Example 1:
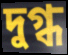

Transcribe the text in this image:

দুগ্ধ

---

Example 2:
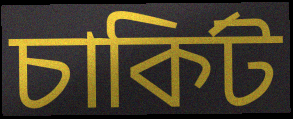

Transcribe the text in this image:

চাৰ্কিট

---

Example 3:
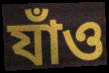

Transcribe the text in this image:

যাঁও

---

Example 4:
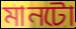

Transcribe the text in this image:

মানটো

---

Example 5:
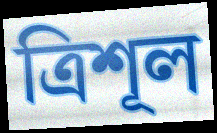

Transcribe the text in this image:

ত্ৰিশূল